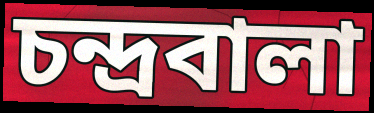
চন্দ্রবালা